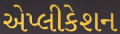
એપ્લીકેશન